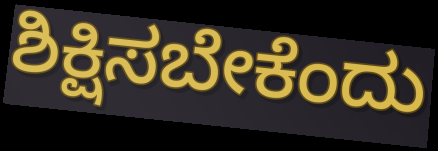
ಶಿಕ್ಷಿಸಬೇಕೆಂದು